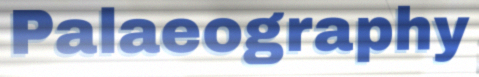
Palaeography